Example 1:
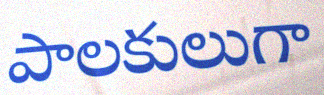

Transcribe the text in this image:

పాలకులుగా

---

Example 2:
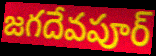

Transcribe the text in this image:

జగదేవపూర్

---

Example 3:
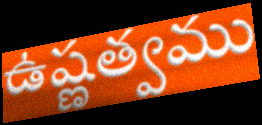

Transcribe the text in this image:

ఉష్ణత్వము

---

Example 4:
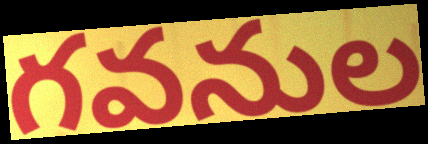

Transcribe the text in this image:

గవనుల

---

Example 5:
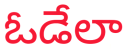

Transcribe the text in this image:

ఓడేలా